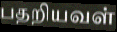
பதறியவள்